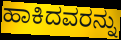
ಹಾಕಿದವರನ್ನು